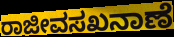
ರಾಜೀವಸಖನಾಣೆ